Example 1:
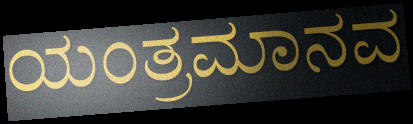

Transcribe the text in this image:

ಯಂತ್ರಮಾನವ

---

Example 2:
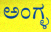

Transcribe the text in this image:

ಅಂಗ್ಳ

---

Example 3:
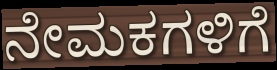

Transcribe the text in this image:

ನೇಮಕಗಳಿಗೆ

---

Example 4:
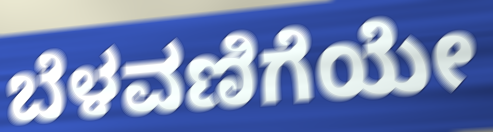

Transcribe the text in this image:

ಬೆಳವಣಿಗೆಯೇ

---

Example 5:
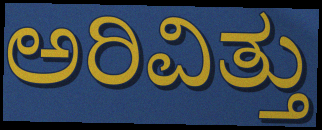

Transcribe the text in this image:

ಅರಿವಿತ್ತು